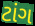
ટાંગ